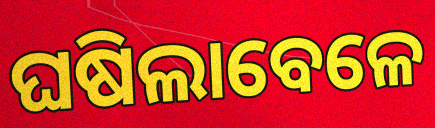
ଘଷିଲାବେଳେ